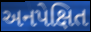
અનપેક્ષિત